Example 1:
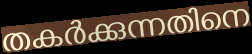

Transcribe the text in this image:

തകർക്കുന്നതിനെ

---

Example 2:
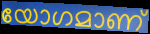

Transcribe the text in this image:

യോഗമാണ്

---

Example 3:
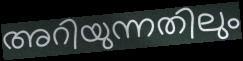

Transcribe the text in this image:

അറിയുന്നതിലും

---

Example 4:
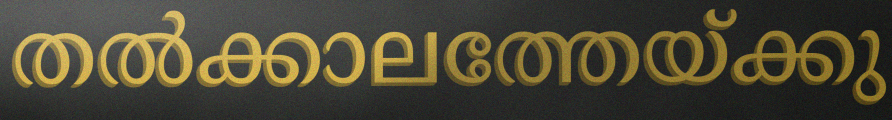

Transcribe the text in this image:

തൽക്കാലത്തേയ്ക്കു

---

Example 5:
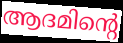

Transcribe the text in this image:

ആദമിന്റെ